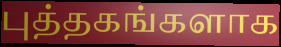
புத்தகங்களாக